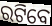
ରଟିବେ